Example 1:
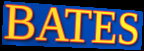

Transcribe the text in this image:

BATES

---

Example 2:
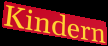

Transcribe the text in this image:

Kindern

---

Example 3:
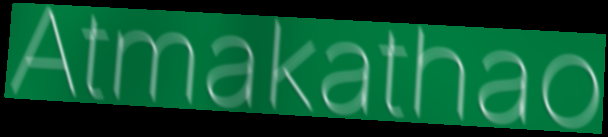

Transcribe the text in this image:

Atmakathao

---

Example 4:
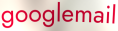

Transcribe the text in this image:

googlemail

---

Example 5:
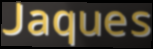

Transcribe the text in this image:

Jaques